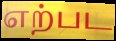
எற்பட